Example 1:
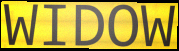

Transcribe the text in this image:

WIDOW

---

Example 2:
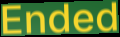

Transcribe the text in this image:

Ended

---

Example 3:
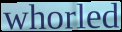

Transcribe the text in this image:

whorled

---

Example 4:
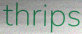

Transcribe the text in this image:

thrips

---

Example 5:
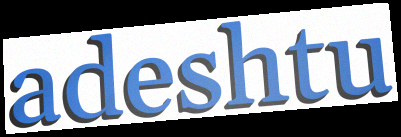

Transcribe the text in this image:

adeshtu